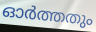
ഓർത്തതും